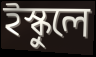
ইস্কুলে